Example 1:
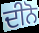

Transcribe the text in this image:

ਦੀਨੋ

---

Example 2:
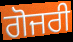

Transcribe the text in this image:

ਗੋਜਰੀ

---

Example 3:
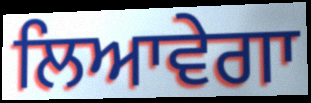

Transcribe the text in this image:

ਲਿਆਵੇਗਾ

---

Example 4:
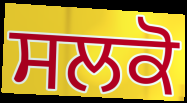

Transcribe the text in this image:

ਸਲਕੋ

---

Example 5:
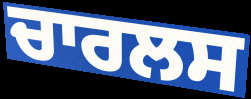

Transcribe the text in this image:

ਚਾਰਲਸ